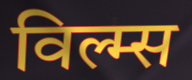
विल्म्स